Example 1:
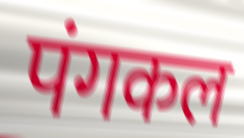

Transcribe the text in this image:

पंगकल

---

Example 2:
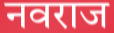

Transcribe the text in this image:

नवराज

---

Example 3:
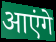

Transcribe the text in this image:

आएंगे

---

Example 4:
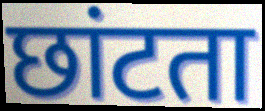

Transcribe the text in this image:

छांटता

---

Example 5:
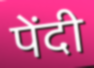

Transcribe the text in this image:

पेंदी